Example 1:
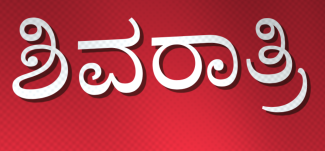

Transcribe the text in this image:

ಶಿವರಾತ್ರಿ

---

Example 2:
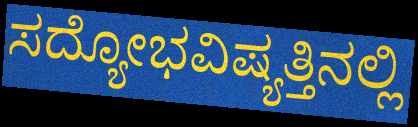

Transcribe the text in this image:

ಸದ್ಯೋಭವಿಷ್ಯತ್ತಿನಲ್ಲಿ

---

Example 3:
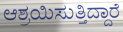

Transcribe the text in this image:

ಆಶ್ರಯಿಸುತ್ತಿದ್ದಾರೆ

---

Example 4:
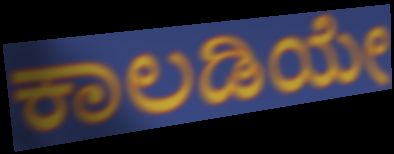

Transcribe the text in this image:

ಕಾಲಡಿಯೇ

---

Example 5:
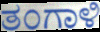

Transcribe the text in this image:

ತಂಗಾಳಿ